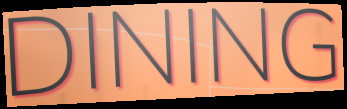
DINING